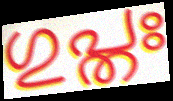
ഗുപ്തഃ